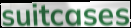
suitcases